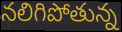
నలిగిపోతున్న